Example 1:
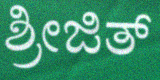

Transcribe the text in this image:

ಶ್ರೀಜಿತ್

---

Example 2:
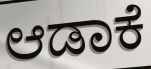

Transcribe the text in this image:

ಆಡಾಕೆ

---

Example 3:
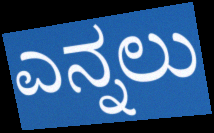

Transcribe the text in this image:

ಎನ್ನಲು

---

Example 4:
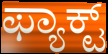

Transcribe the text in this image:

ಫ್ಯಾಕ್ಟ್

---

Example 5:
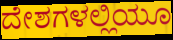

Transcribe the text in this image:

ದೇಶಗಳಲ್ಲಿಯೂ